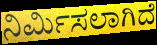
ನಿರ್ಮಿಸಲಾಗಿದೆ